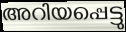
അറിയപ്പെട്ടു